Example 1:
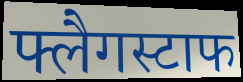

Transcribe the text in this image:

फ्लैगस्टाफ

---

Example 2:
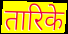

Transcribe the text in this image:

तारिके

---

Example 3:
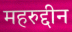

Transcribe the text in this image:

महरुद्दीन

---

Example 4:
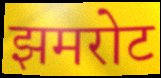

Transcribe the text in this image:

झमरोट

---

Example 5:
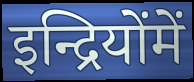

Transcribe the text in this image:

इन्द्रियोंमें